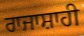
ਰਾਜਾਸ਼ਾਹੀ